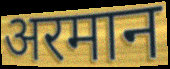
अरमान